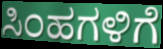
ಸಿಂಹಗಳಿಗೆ